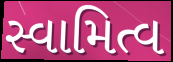
સ્વામિત્વ